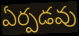
ఏర్పడవు